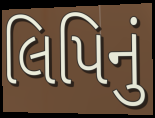
લિપિનું